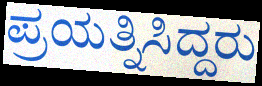
ಪ್ರಯತ್ನಿಸಿದ್ದರು